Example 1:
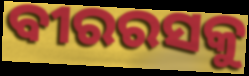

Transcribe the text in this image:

ବୀରରସକୁ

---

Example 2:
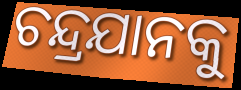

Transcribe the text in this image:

ଚନ୍ଦ୍ରଯାନକୁ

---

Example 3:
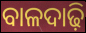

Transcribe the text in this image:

ବାଳଦାଢ଼ି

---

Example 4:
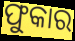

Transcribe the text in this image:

ଫୁକାର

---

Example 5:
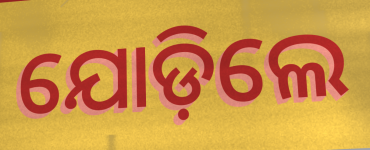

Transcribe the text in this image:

ଯୋଡ଼ିଲେ